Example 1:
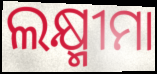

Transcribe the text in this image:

ଲକ୍ଷ୍ମୀମା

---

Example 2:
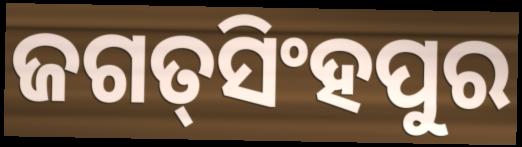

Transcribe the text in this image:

ଜଗତ୍‌ସିଂହପୁର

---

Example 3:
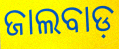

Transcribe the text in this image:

ଜାଲବାଡ଼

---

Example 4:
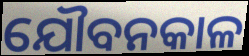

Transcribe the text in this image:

ଯୌବନକାଳ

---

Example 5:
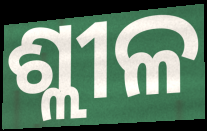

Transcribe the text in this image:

ଶ୍ଲୀଳ